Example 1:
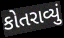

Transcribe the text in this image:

કોતરાવ્યું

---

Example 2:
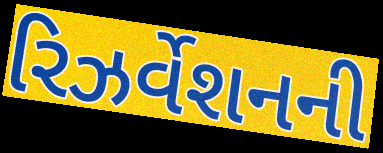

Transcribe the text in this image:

રિઝર્વેશનની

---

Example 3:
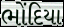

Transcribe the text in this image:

ભોંદિયા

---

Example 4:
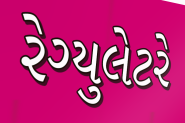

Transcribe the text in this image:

રેગ્યુલેટરે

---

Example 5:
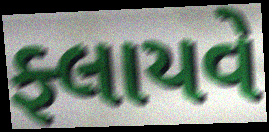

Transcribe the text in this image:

ફ્લાયવે